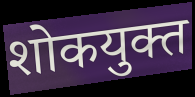
शोकयुक्त